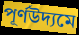
পূর্ণউদ্যমে